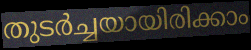
തുടർച്ചയായിരിക്കാം